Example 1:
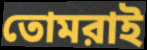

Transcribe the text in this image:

তোমরাই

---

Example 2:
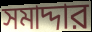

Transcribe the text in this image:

সমাদ্দার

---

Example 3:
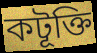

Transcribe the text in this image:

কটূক্তি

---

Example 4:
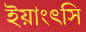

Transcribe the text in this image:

ইয়াংৎসি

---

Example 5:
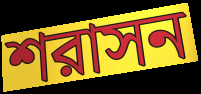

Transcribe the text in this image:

শরাসন